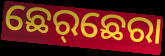
ଛେର୍‌ଛେରା